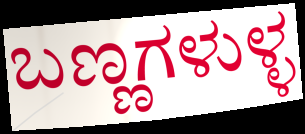
ಬಣ್ಣಗಳುಳ್ಳ